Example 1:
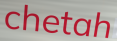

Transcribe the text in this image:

chetah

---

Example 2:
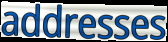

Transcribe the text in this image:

addresses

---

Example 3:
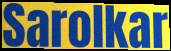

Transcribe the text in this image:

Sarolkar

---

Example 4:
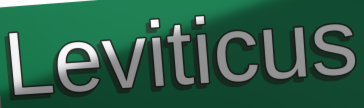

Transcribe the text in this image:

Leviticus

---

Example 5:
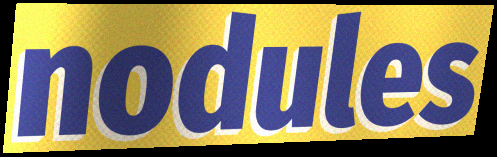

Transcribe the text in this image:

nodules